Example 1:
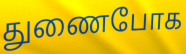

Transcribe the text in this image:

துணைபோக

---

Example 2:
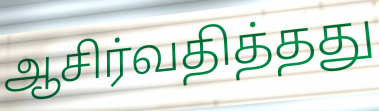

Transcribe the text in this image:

ஆசிர்வதித்தது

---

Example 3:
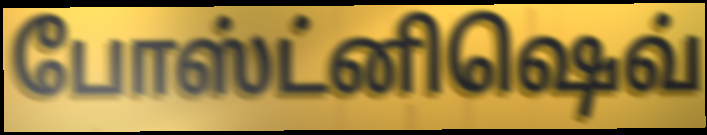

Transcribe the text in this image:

போஸ்ட்னிஷெவ்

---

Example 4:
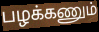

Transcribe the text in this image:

பழக்கணும்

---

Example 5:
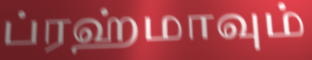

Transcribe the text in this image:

ப்ரஹ்மாவும்